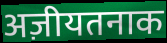
अज़ीयतनाक